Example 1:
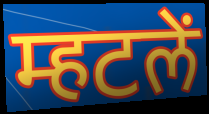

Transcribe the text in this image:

म्हटलें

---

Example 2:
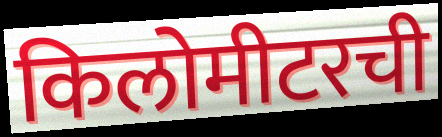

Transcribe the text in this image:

किलोमीटरची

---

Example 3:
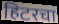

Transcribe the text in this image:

हिटरचा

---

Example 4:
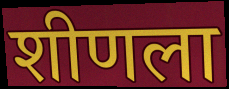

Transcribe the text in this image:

शीणला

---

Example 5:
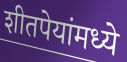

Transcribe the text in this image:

शीतपेयांमध्ये